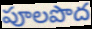
పూలపొద